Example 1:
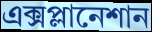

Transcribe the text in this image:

এক্সপ্লানেশান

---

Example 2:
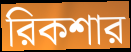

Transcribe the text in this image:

রিকশার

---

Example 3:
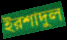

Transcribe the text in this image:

ইরশাদুল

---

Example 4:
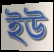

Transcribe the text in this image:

ইউ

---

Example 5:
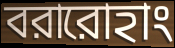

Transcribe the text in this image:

বরারোহাং